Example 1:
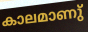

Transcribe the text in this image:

കാലമാണു്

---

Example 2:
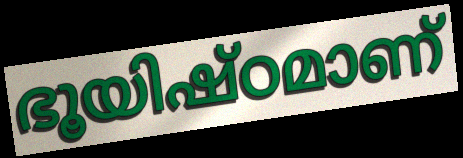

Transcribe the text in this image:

ഭൂയിഷ്ഠമാണ്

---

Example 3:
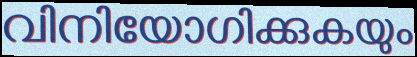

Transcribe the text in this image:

വിനിയോഗിക്കുകയും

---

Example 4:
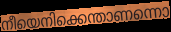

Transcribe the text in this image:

നീയെനിക്കെന്താണന്നൊ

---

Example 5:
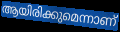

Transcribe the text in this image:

ആയിരിക്കുമെന്നാണ്